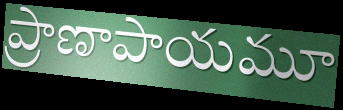
ప్రాణాపాయమూ